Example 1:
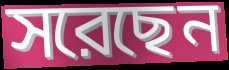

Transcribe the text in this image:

সরেছেন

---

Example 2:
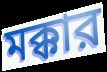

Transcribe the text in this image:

মক্কার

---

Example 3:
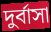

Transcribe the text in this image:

দুর্বাসা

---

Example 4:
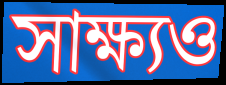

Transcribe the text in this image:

সাক্ষ্যও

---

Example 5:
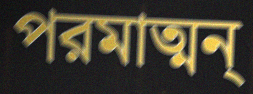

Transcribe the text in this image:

পরমাত্মন্